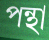
পন্থা